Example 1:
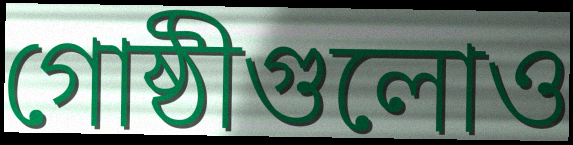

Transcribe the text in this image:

গোষ্ঠীগুলোও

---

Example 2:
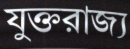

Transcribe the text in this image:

যুক্তরাজ্য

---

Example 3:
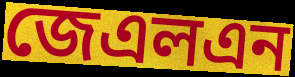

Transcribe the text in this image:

জেএলএন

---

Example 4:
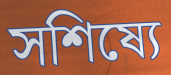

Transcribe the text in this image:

সশিষ্যে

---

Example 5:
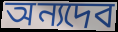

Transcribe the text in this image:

অন্যদেব